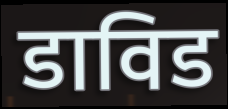
डाविड